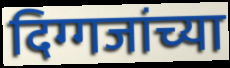
दिग्गजांच्या